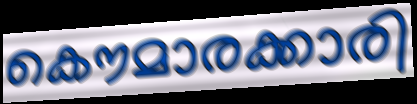
കൌമാരക്കാരി